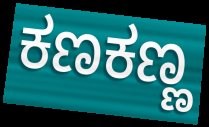
ಕಣಕಣ್ಣ